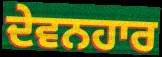
ਦੇਵਨਹਾਰ